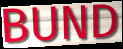
BUND